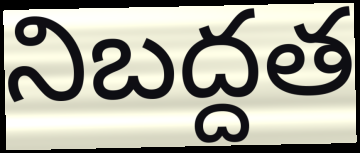
నిబద్దత